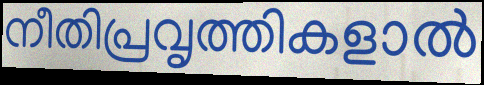
നീതിപ്രവൃത്തികളാൽ